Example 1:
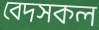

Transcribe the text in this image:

বেদসকল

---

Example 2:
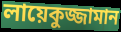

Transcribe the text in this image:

লায়েকুজ্জামান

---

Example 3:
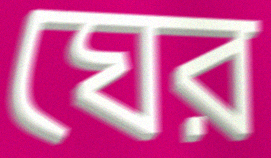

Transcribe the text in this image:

ঘের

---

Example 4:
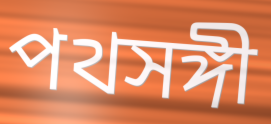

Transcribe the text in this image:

পথসঙ্গী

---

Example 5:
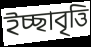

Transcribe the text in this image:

ইচ্ছাবৃত্তি